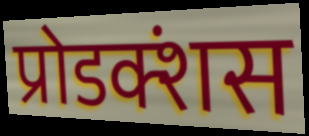
प्रोडक्शंस